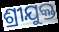
ଶ୍ରୀଯୁକ୍ତ